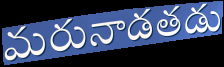
మరునాడతడు